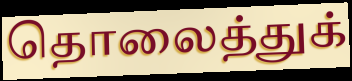
தொலைத்துக்